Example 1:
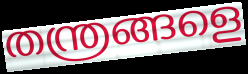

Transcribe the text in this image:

തന്ത്രങ്ങളെ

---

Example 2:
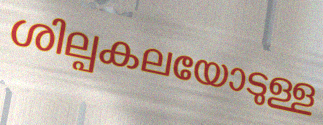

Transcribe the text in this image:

ശില്പകലയോടുള്ള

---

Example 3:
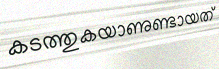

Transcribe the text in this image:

കടത്തുകയാണുണ്ടായത്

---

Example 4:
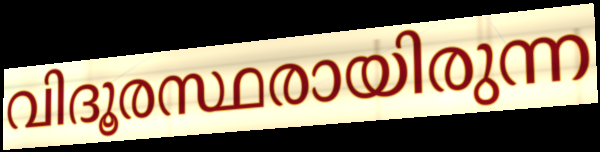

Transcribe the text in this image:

വിദൂരസ്ഥരായിരുന്ന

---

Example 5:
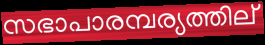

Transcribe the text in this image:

സഭാപാരമ്പര്യത്തില്